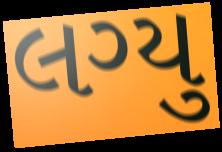
લગ્યુ